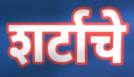
शर्टाचे